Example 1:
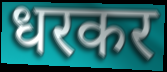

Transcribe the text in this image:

धरकर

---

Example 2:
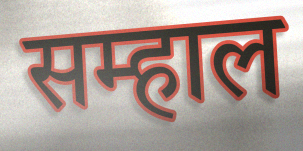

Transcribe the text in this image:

सम्हाल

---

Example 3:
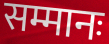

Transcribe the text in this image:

सम्मानः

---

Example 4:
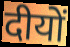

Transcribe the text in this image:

दीयों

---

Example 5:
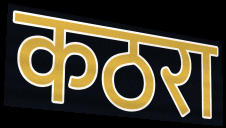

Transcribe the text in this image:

कठरा